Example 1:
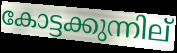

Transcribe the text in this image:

കോട്ടക്കുന്നില്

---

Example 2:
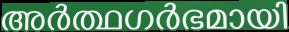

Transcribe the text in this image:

അർത്ഥഗർഭമായി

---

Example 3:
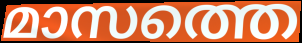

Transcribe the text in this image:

മാസത്തെ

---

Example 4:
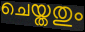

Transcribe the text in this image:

ചെയ്തതും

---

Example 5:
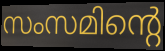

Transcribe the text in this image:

സംസമിന്റെ